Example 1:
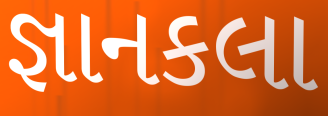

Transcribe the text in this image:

જ્ઞાનકલા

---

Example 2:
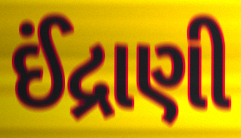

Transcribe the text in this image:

ઈંદ્રાણી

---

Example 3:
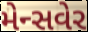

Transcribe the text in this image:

મેન્સવેર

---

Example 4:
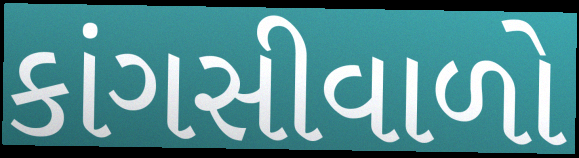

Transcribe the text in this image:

કાંગસીવાળો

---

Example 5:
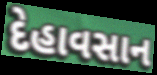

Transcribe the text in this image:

દેહાવસાન